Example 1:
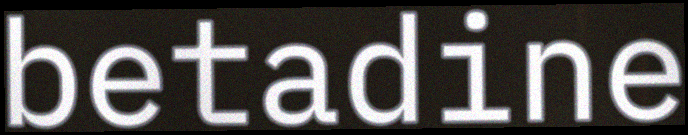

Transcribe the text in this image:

betadine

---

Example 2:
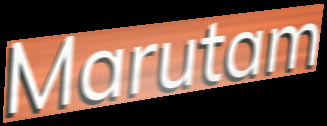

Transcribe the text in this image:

Marutam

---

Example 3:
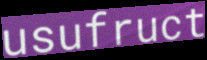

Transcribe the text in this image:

usufruct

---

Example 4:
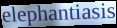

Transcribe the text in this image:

elephantiasis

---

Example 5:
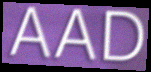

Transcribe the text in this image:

AAD